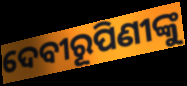
ଦେବୀରୂପିଣୀଙ୍କୁ